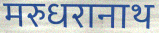
मरुधरानाथ